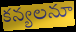
కన్యలనూ